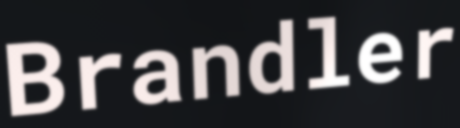
Brandler